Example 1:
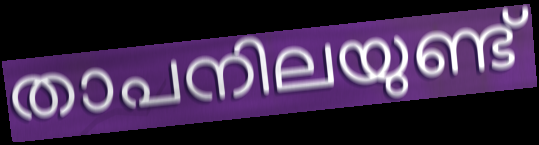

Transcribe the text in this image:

താപനിലയുണ്ട്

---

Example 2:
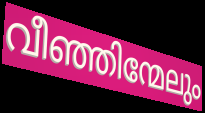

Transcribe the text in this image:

വീഞ്ഞിന്മേലും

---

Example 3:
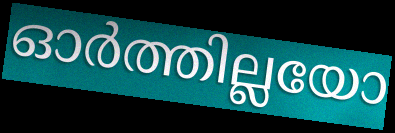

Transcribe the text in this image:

ഓർത്തില്ലയോ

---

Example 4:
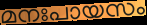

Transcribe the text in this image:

മനഃപായസം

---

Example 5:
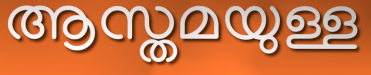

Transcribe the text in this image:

ആസ്തമയുള്ള